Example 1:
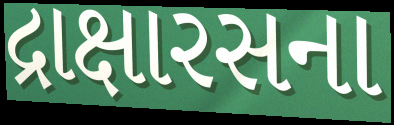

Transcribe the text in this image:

દ્રાક્ષારસના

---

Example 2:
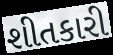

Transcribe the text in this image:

શીતકારી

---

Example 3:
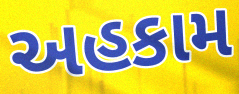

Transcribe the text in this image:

અહકામ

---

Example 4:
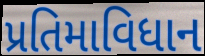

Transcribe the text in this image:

પ્રતિમાવિધાન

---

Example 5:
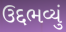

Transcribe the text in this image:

ઉદ્દભવ્યું